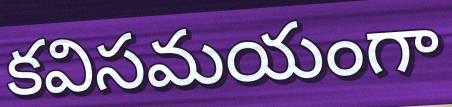
కవిసమయంగా